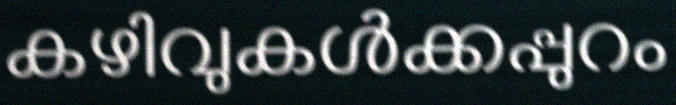
കഴിവുകൾക്കപ്പുറം